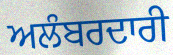
ਅਲੰਬਰਦਾਰੀ